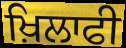
ਖ਼ਿਲਾਫੀ